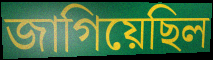
জাগিয়েছিল